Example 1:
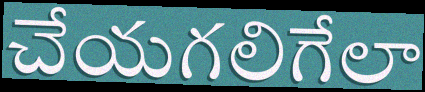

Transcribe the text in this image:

చేయగలిగేలా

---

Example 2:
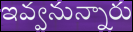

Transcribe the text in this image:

ఇవ్వనున్నారు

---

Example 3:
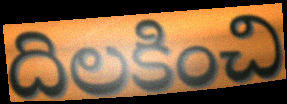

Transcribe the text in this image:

దిలకించి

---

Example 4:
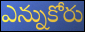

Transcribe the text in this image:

ఎన్నుకోరు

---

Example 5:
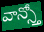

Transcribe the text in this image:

వాన్స్తో